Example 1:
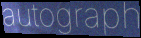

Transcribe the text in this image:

autograph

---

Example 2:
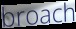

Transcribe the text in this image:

broach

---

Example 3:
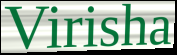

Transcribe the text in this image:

Virisha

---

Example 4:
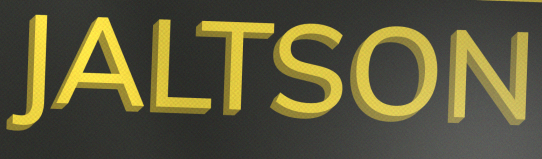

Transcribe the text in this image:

JALTSON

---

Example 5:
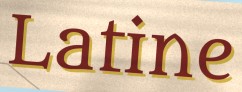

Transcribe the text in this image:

Latine